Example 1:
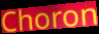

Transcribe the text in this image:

Choron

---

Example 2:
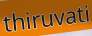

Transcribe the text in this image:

thiruvati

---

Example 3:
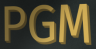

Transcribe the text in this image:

PGM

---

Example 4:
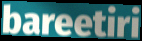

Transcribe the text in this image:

bareetiri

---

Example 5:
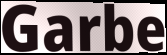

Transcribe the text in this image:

Garbe